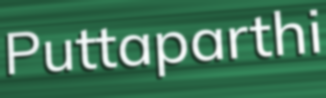
Puttaparthi